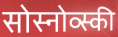
सोस्नोव्स्की